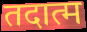
तदात्म